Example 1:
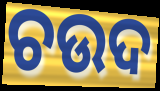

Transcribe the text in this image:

ଚଉଦ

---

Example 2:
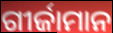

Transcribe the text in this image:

ଗୀର୍ଜାମାନ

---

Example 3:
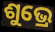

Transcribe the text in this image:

ଶୁଭ୍ରେ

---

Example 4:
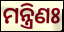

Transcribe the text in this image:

ମନ୍ତ୍ରିଣଃ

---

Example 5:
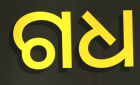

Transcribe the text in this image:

ଗଧ